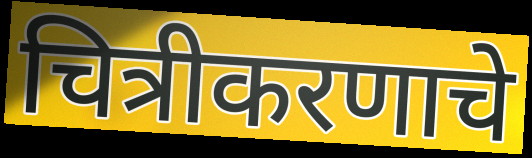
चित्रीकरणाचे